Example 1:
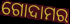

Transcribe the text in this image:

ଗୋଦାମର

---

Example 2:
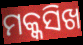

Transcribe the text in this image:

ମକ୍କସିଖ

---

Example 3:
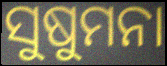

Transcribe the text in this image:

ସୁଷୁମନା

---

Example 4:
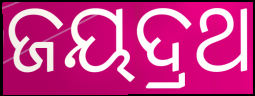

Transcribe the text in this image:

ଜୟଦ୍ରଥ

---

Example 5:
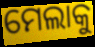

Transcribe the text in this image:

ମେଲାକୁ